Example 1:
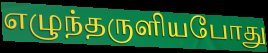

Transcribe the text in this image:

எழுந்தருளியபோது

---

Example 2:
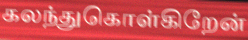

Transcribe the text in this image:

கலந்துகொள்கிறேன்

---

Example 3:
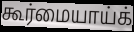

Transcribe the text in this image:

கூர்மையாய்க்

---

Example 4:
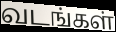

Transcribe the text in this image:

வடங்கள்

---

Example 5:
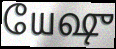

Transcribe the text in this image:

யேஷு